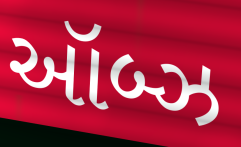
ઑબ્ઝ